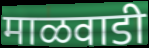
माळवाडी